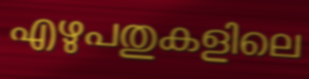
എഴുപതുകളിലെ